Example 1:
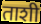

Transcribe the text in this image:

ताशी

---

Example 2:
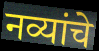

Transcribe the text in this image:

नव्यांचे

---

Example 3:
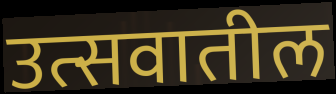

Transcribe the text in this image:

उत्सवातील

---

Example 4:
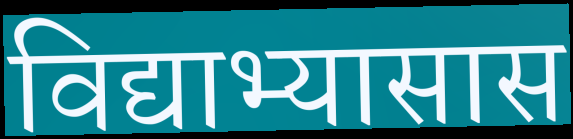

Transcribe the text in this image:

विद्याभ्यासास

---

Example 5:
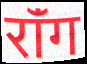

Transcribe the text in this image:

रॉंग